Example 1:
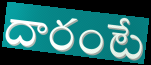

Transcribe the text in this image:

దారంటే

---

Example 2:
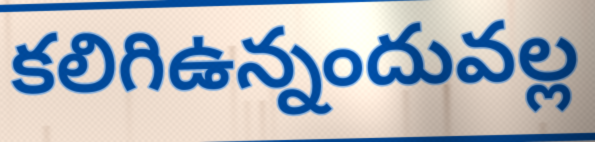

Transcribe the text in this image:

కలిగిఉన్నందువల్ల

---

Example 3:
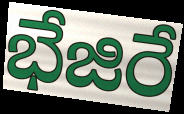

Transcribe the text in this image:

భేజిరే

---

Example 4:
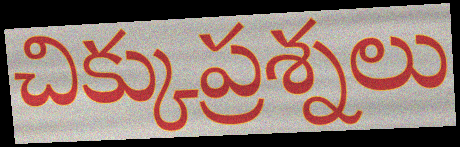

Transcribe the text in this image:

చిక్కుప్రశ్నలు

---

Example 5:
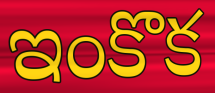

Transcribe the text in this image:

ఇంకొక